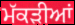
ਮੱਕੜੀਆਂ